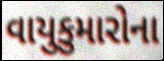
વાયુકુમારોના